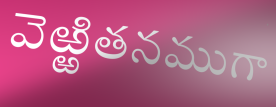
వెఱ్ఱితనముగా